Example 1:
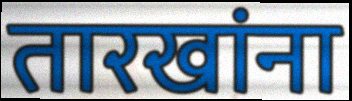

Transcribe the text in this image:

तारखांना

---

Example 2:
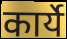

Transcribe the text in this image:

कार्ये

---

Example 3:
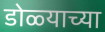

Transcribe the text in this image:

डोळ्याच्या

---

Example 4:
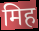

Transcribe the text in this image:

मिह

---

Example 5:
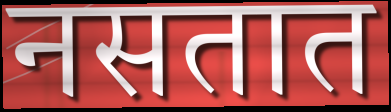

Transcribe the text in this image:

नसतात